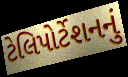
ટેલિપોર્ટેશનનું